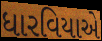
ધારવિયાએ